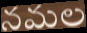
నమల